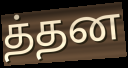
த்தன